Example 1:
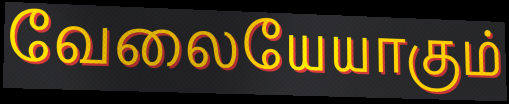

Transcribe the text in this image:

வேலையேயாகும்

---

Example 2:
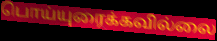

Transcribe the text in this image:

பொய்யுரைக்கவில்லை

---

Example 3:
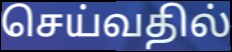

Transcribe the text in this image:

செய்வதில்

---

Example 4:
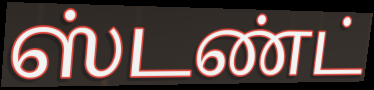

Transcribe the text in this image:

ஸ்டண்ட்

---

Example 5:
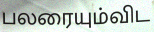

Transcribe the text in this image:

பலரையும்விட